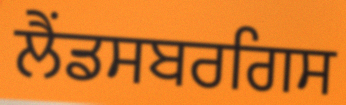
ਲੈਂਡਸਬਰਗਿਸ